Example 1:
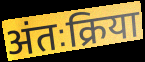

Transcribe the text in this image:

अंतःक्रिया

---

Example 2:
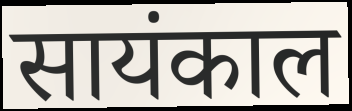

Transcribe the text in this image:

सायंकाल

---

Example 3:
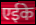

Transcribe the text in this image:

एईके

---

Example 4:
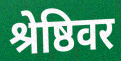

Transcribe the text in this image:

श्रेष्ठिवर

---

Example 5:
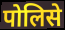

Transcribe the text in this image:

पोलिसे